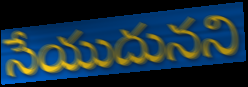
సేయుదునని